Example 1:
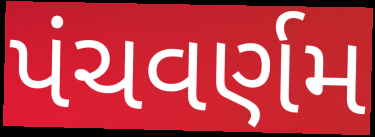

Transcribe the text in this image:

પંચવર્ણમ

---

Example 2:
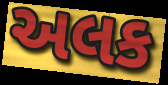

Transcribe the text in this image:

અલક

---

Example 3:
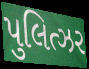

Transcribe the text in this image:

પુલિત્ઝર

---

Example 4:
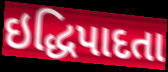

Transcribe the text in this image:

ઇદ્ધિપાદતા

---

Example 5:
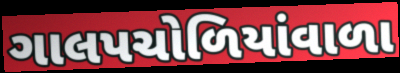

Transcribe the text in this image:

ગાલપચોળિયાંવાળા